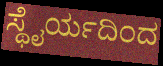
ಸ್ಥೈರ್ಯದಿಂದ